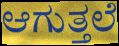
ಆಗುತ್ತಲೆ